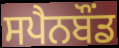
ਸਪੈਨਬੌਂਡ